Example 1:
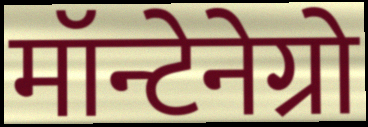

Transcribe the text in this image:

मॉन्टेनेग्रो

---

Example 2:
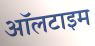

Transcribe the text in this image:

ऑलटाइम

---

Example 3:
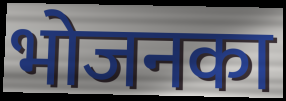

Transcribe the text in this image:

भोजनका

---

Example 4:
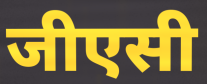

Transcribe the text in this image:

जीएसी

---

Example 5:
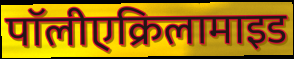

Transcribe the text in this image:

पॉलीएक्रिलामाइड